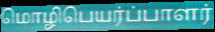
மொழிபெயர்ப்பாளர்